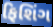
ફિશિંગ